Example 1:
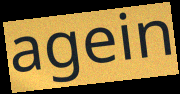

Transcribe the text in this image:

agein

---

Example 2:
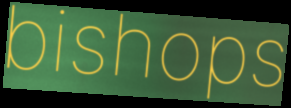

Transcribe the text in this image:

bishops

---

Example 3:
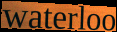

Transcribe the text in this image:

waterloo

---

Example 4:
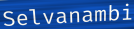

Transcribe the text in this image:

Selvanambi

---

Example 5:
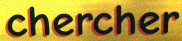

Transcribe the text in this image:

chercher